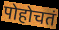
पोहोचतं